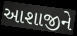
આશાજીને